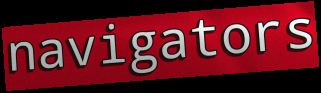
navigators